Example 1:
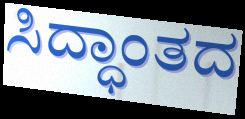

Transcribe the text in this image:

ಸಿದ್ಧಾಂತದ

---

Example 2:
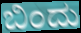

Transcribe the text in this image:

ಬಿಂದು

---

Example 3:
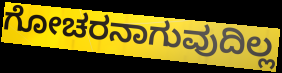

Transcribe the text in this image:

ಗೋಚರನಾಗುವುದಿಲ್ಲ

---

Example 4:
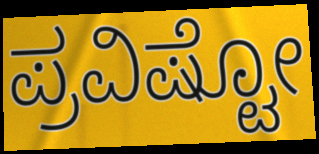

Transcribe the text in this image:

ಪ್ರವಿಷ್ಟೋ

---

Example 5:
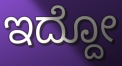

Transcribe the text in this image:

ಇದ್ದೋ